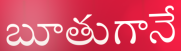
బూతుగానే